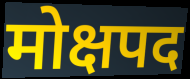
मोक्षपद